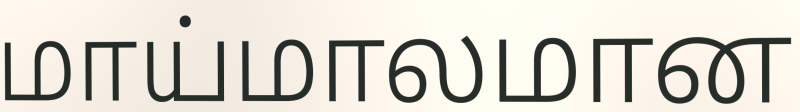
மாய்மாலமான